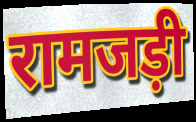
रामजड़ी